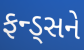
ફન્ડ્સને